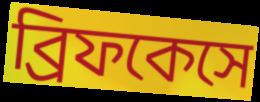
ব্রিফকেসে